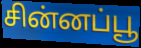
சின்னப்பூ